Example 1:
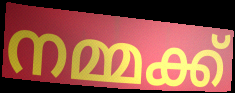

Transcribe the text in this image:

നമ്മക്ക്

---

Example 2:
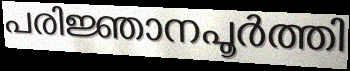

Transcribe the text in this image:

പരിജ്ഞാനപൂർത്തി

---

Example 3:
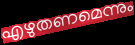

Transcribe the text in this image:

എഴുതണമെന്നും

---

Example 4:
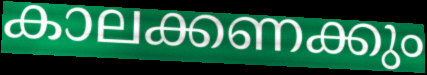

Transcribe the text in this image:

കാലക്കണക്കും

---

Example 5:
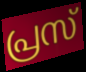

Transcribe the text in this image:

പ്രസ്